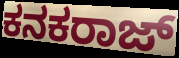
ಕನಕರಾಜ್